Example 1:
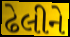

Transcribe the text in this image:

ઢેલીને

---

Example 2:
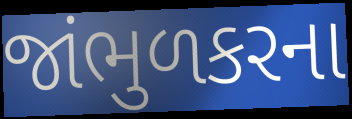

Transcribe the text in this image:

જાંભુળકરના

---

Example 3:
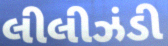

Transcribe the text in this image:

લીલીઝંડી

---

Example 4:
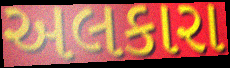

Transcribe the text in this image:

અલકારા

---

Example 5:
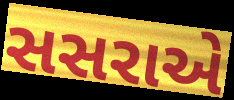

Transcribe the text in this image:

સસરાએ